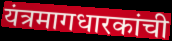
यंत्रमागधारकांची